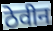
ठेवीन